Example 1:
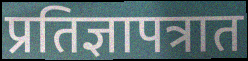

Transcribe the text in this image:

प्रतिज्ञापत्रात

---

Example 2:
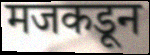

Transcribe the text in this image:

मजकडून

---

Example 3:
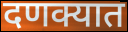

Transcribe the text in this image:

दणक्यात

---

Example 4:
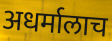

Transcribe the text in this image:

अधर्मालाच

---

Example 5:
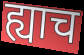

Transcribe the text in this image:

ह्याच